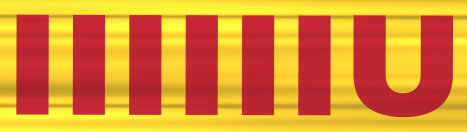
IIIIIIU